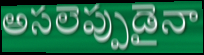
అసలెప్పుడైనా